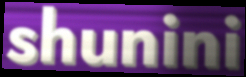
shunini